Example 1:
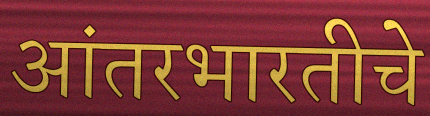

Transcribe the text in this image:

आंतरभारतीचे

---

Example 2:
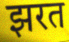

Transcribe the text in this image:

झरत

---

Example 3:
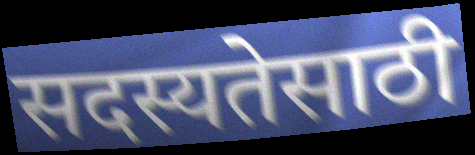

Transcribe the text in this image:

सदस्यतेसाठी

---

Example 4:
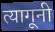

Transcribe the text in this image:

त्यागूनी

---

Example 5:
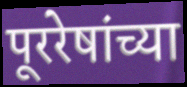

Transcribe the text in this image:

पूररेषांच्या